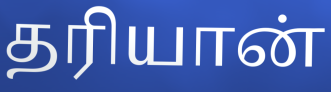
தரியான்